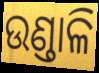
ଉଣ୍ଡାଳି